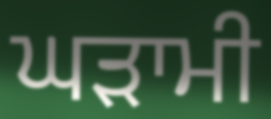
ਘੜਾਮੀ